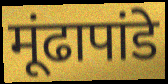
मूंढापांडे